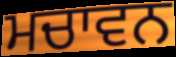
ਮਚਾਵਨ